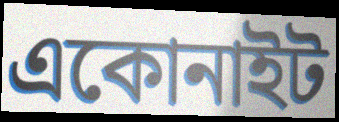
একোনাইট